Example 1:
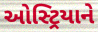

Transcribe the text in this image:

ઓસ્ટ્રિયાને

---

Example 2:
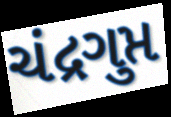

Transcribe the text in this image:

ચંદ્રગુપ્ત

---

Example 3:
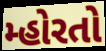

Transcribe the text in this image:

મ્હોરતો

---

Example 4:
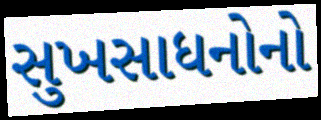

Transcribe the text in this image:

સુખસાધનોનો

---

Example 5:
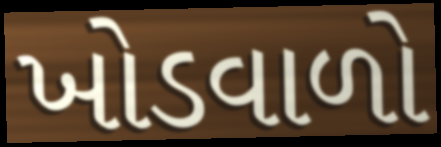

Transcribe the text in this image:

ખોડવાળો